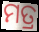
ମତ୍ର